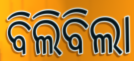
ବିଲିବିଲା